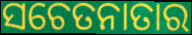
ସଚେତନାତାର